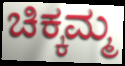
ಚಿಕ್ಕಮ್ಮ